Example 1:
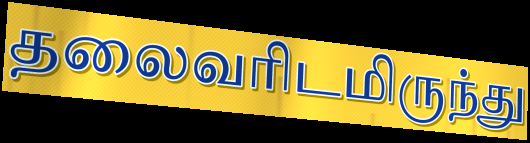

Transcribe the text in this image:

தலைவரிடமிருந்து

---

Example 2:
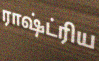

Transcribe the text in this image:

ராஷ்ட்ரிய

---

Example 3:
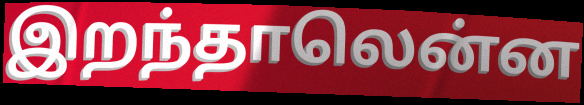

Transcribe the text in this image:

இறந்தாலென்ன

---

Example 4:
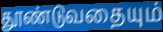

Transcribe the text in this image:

தூண்டுவதையும்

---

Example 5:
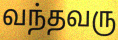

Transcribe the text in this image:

வந்தவரு